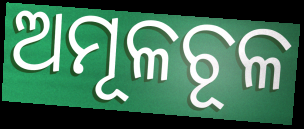
ଅମୂଳଚୂଳ